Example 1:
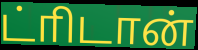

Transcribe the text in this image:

ட்ரிடான்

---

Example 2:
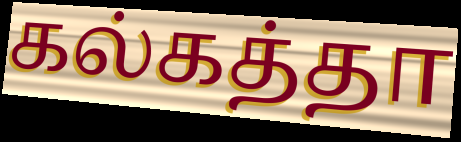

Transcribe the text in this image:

கல்கத்தா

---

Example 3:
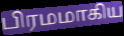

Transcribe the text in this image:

பிரமமாகிய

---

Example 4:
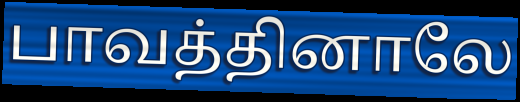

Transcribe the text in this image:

பாவத்தினாலே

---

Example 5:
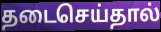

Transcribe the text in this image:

தடைசெய்தால்